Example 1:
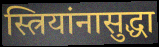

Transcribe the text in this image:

स्त्रियांनासुद्धा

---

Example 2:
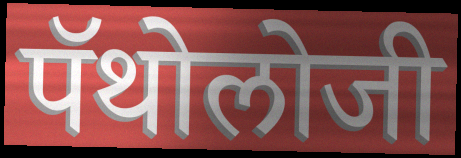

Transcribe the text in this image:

पॅथोलोजी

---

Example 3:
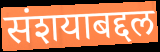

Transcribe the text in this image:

संशयाबद्दल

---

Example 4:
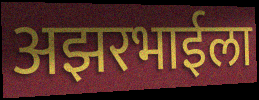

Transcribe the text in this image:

अझरभाईला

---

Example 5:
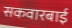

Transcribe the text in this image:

सकवारबाई